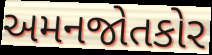
અમનજોતકોર